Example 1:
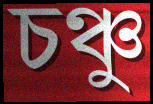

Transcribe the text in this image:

চঞ্চু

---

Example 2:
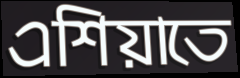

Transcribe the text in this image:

এশিয়াতে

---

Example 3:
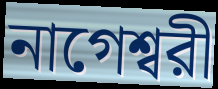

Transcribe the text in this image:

নাগেশ্বরী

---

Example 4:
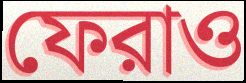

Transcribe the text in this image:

ফেরাও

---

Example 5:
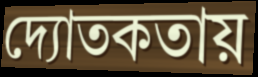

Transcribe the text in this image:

দ্যোতকতায়